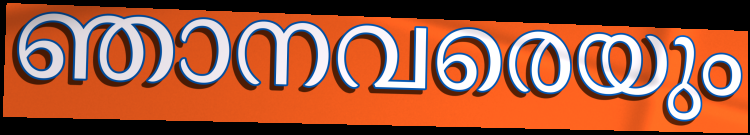
ഞാനവരെയും